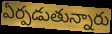
ఏర్పడుతున్నారు